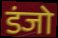
डंजो